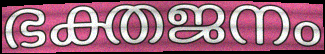
ഭക്തജനം